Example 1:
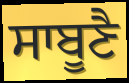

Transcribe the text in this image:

ਸਾਬੂਣੈ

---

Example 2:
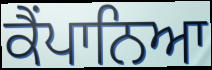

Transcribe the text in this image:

ਕੈਂਪਾਨਿਆ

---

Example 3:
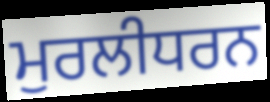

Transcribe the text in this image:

ਮੁਰਲੀਧਰਨ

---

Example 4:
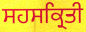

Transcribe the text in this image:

ਸਹਸਕ੍ਰਿਤੀ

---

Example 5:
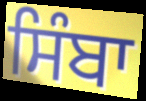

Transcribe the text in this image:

ਸਿੰਬਾ